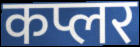
कप्लर